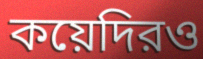
কয়েদিরও